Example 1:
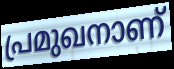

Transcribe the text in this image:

പ്രമുഖനാണ്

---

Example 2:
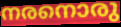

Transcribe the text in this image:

നരനൊരു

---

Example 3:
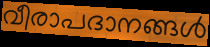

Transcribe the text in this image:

വീരാപദാനങ്ങൾ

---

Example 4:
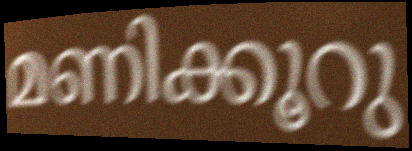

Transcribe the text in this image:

മണിക്കൂറു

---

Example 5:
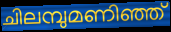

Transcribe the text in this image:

ചിലമ്പുമണിഞ്ഞ്